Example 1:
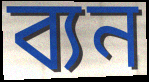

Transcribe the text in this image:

ব্যন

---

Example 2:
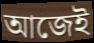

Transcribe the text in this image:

আজেই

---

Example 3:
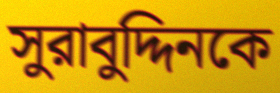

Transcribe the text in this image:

সুরাবুদ্দিনকে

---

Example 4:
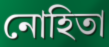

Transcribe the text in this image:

নোহিতা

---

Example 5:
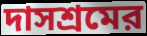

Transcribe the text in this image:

দাসশ্রমের